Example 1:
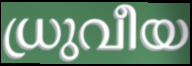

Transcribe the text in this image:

ധ്രുവീയ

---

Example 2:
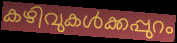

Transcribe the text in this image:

കഴിവുകൾക്കപ്പുറം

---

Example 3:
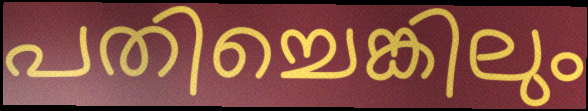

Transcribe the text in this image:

പതിച്ചെങ്കിലും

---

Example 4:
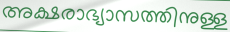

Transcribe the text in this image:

അക്ഷരാഭ്യാസത്തിനുള്ള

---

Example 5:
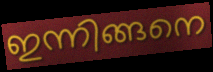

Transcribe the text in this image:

ഇന്നിങ്ങനെ